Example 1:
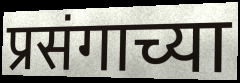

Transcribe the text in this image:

प्रसंगाच्या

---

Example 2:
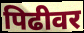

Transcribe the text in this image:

पिढीवर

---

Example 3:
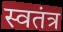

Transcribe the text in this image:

स्वतंत्र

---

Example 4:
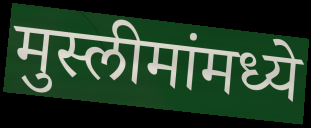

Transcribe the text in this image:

मुस्लीमांमध्ये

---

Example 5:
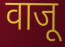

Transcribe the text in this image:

वाजू